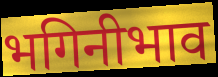
भगिनीभाव